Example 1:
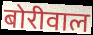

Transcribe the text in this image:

बोरीवाल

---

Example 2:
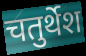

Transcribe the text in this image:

चतुर्थेश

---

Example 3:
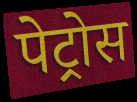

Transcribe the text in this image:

पेट्रोस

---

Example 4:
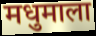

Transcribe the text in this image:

मधुमाला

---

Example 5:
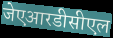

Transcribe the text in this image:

जेएआरडीसीएल